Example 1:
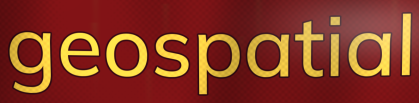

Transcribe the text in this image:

geospatial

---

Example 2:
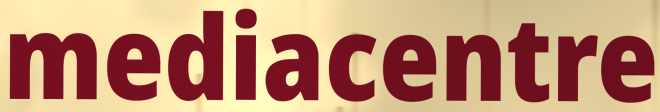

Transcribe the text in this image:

mediacentre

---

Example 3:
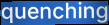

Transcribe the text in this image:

quenching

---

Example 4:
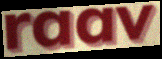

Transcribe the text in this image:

raav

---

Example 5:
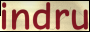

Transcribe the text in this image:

indru